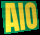
AIO